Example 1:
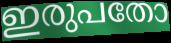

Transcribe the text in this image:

ഇരുപതോ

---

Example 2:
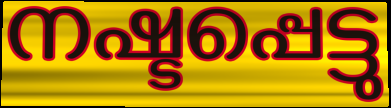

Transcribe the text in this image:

നഷ്ടപ്പെട്ടു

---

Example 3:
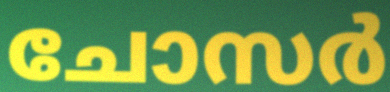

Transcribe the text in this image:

ചോസർ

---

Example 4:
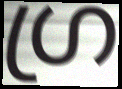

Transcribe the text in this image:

ഗ്ര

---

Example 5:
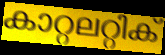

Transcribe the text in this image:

കാറ്റലറ്റിക്